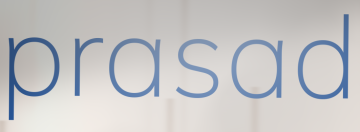
prasad